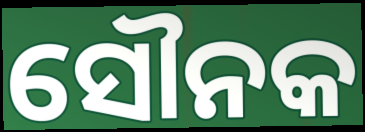
ସୌନକ